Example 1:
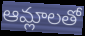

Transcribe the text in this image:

ఆమ్లాలతో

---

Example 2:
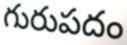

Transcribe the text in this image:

గురుపదం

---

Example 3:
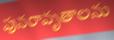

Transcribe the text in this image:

పునరావృతాలను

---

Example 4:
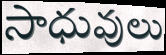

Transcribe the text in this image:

సాధువులు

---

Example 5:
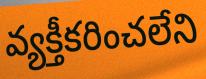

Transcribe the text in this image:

వ్యక్తీకరించలేని